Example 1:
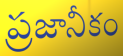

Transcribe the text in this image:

ప్రజానీకం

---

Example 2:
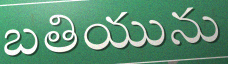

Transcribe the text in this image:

బతియును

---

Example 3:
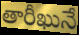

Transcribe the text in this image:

తారీఖునే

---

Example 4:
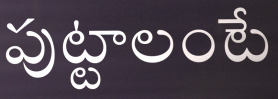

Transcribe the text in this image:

పుట్టాలంటే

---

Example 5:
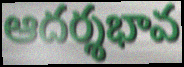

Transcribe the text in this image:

ఆదర్శభావ